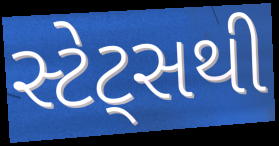
સ્ટેટ્સથી